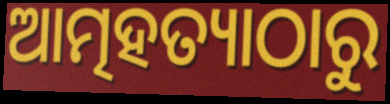
ଆତ୍ମହତ୍ୟାଠାରୁ